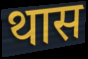
थास